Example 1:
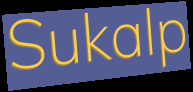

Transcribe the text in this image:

Sukalp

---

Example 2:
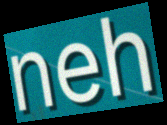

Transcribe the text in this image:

neh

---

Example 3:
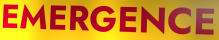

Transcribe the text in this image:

EMERGENCE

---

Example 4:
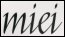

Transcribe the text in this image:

miei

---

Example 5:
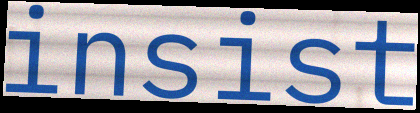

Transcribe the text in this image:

insist